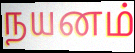
நயனம்